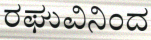
ರಘುವಿನಿಂದ